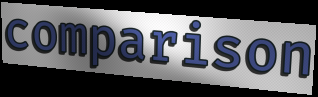
comparison